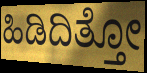
ಹಿಡಿದಿತ್ತೋ